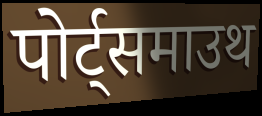
पोर्ट्समाउथ